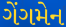
ગેંગમેન